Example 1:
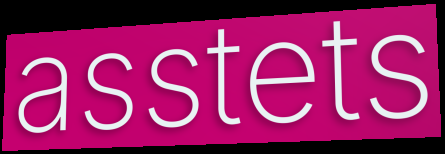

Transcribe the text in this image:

asstets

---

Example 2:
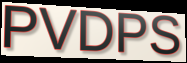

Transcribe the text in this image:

PVDPS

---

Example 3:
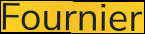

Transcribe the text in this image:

Fournier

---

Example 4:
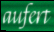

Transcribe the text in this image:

aufert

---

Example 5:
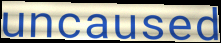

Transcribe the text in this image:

uncaused